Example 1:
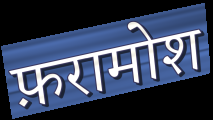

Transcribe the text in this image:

फ़रामोश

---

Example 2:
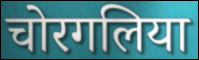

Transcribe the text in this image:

चोरगलिया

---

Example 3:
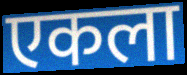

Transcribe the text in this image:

एकला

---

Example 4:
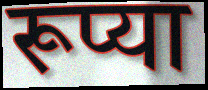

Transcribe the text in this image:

रूप्या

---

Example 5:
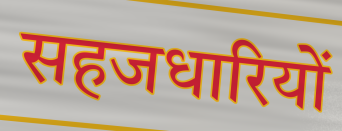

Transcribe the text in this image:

सहजधारियों